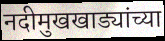
नदीमुखखाड्यांच्या